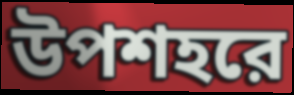
উপশহরে